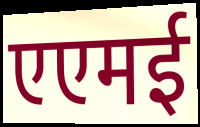
एएमई